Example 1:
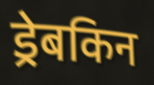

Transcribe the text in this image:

ड्रेबकिन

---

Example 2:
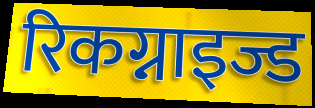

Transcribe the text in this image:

रिकग्नाइज्ड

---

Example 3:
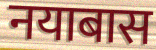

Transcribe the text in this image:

नयाबास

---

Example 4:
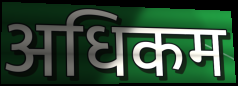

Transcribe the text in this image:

अधिकम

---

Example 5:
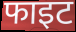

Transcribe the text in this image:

फाइट